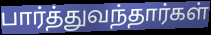
பார்த்துவந்தார்கள்